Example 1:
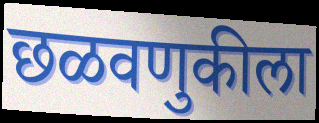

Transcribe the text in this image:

छळवणुकीला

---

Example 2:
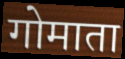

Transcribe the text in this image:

गोमाता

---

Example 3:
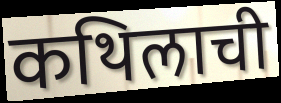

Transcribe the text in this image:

कथिलाची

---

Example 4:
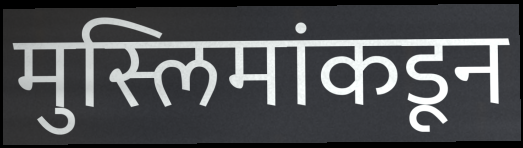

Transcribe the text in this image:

मुस्लिमांकडून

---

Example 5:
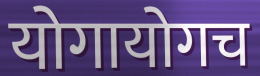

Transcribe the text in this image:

योगायोगच